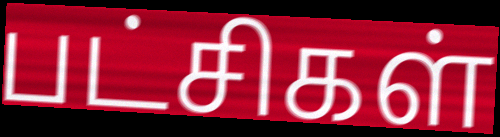
பட்சிகள்